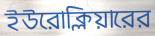
ইউরোক্লিয়ারের